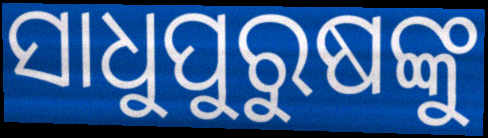
ସାଧୁପୁରୁଷଙ୍କୁ